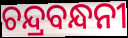
ଚନ୍ଦ୍ରବନ୍ଧନୀ